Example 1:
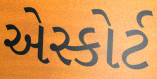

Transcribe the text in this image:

એસ્કોર્ટ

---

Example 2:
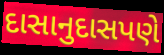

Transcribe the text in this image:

દાસાનુદાસપણે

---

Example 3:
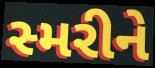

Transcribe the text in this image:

સ્મરીને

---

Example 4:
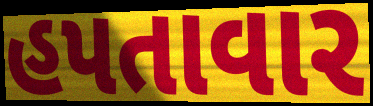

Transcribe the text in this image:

હપતાવાર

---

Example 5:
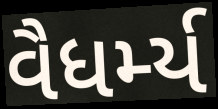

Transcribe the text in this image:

વૈધર્મ્ય